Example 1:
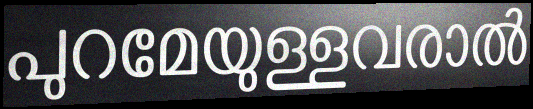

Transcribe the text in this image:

പുറമേയുള്ളവരാൽ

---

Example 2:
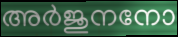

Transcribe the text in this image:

അർജുനനോ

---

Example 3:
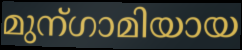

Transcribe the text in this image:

മുന്ഗാമിയായ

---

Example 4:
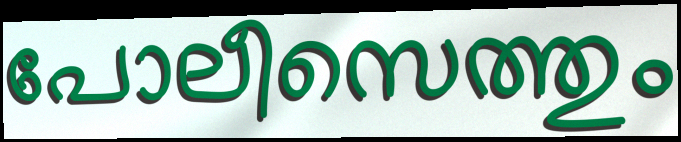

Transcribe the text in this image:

പോലീസെത്തും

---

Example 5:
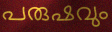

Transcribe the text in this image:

പരുഷവും